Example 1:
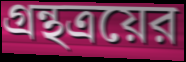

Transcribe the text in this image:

গ্রন্থত্রয়ের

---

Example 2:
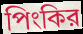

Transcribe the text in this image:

পিংকির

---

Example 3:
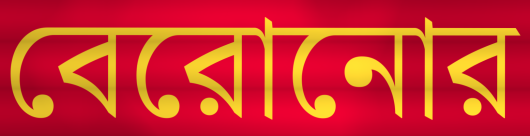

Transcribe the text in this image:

বেরোনোর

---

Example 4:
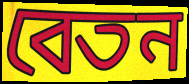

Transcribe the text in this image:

বেতন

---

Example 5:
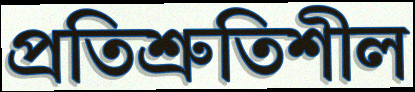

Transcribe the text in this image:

প্রতিশ্রুতিশীল